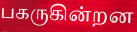
பகருகின்றன